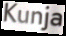
Kunja